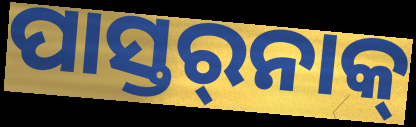
ପାସ୍ତର୍‍ନାକ୍